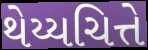
થેય્યચિત્તે